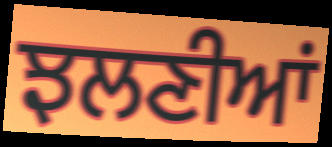
ਝਲਣੀਆਂ